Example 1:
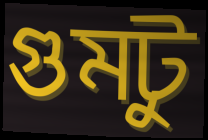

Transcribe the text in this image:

গুমটু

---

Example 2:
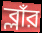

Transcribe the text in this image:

ব্লাঁর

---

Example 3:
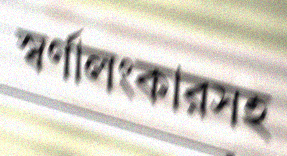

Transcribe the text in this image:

স্বর্ণালংকারসহ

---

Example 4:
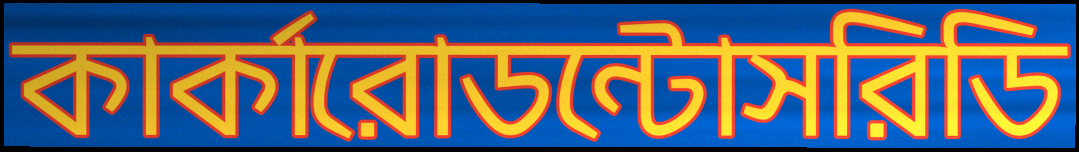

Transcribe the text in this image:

কার্কারোডন্টোসরিডি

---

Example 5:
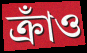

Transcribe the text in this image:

ক্রাঁও